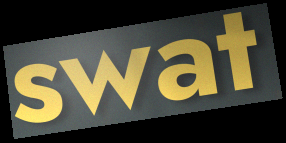
swat